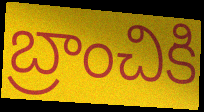
బ్రాంచికి